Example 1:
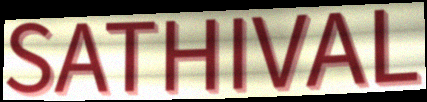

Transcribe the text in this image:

SATHIVAL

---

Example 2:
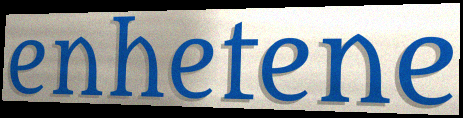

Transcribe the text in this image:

enhetene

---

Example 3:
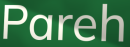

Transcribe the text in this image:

Pareh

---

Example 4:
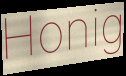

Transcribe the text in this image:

Honig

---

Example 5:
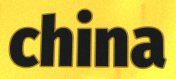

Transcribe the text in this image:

china